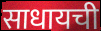
साधायची